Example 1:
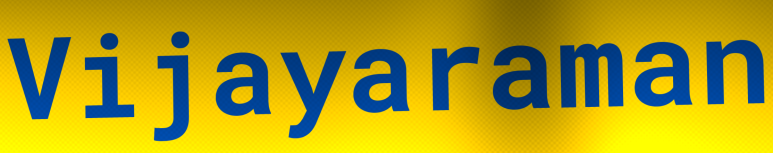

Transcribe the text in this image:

Vijayaraman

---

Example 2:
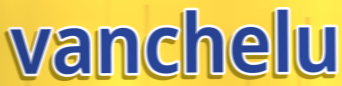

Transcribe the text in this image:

vanchelu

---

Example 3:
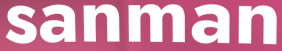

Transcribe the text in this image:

sanman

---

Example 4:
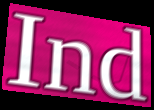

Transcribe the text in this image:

Ind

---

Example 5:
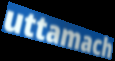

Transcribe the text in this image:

uttamach